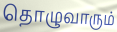
தொழுவாரும்